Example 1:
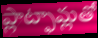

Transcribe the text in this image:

ప్లాట్ఫామ్లతో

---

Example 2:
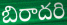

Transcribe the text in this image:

బిరాదరి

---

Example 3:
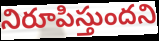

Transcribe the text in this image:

నిరూపిస్తుందని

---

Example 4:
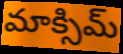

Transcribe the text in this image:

మాక్సిమ్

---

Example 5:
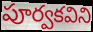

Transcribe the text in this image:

పూర్వకవిని